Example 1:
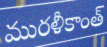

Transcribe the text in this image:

మురళీకాంత్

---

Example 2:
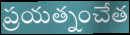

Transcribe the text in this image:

ప్రయత్నంచేత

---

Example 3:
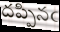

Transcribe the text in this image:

దప్పినఁ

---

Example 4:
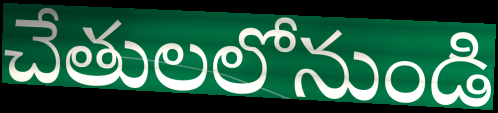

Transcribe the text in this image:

చేతులలోనుండి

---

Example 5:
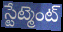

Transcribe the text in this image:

స్టేట్మెంట్